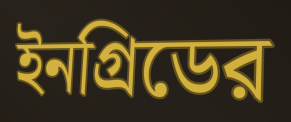
ইনগ্রিডের